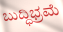
ಬುದ್ಧಿಭ್ರಮೆ